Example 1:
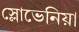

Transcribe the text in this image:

স্লোভেনিয়া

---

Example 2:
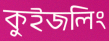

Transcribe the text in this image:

কুইজলিং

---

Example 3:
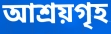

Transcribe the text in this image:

আশ্ৰয়গৃহ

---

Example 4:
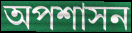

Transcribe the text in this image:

অপশাসন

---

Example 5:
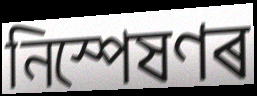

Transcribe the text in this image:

নিস্পেষণৰ